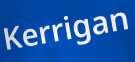
Kerrigan